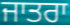
ਜਾਤਰਾ